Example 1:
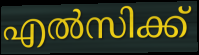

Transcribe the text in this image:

എൽസിക്ക്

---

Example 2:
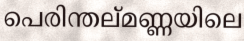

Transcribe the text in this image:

പെരിന്തല്മണ്ണയിലെ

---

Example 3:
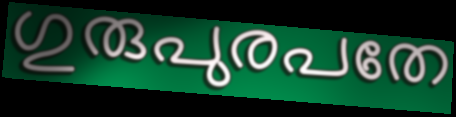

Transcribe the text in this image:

ഗുരുപുരപതേ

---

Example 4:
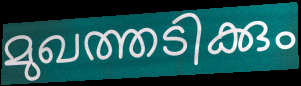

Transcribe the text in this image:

മുഖത്തടിക്കും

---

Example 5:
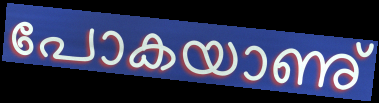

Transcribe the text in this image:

പോകയാണു്